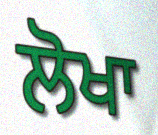
ਲੋਖਾ